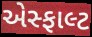
એસ્ફાલ્ટ